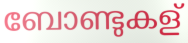
ബോണ്ടുകള്